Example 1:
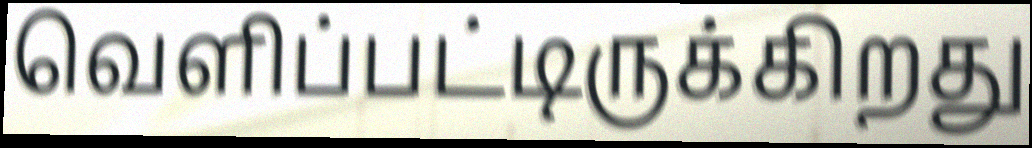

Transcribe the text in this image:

வெளிப்பட்டிருக்கிறது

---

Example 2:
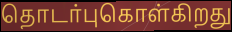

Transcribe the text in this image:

தொடர்புகொள்கிறது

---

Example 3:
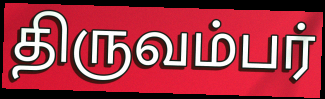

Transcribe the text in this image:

திருவம்பர்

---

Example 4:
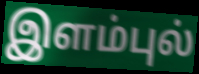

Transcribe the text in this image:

இளம்புல்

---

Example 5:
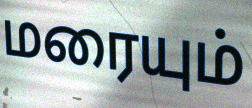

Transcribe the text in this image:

மரையும்